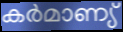
കർമാണ്യ്